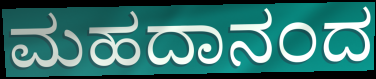
ಮಹದಾನಂದ